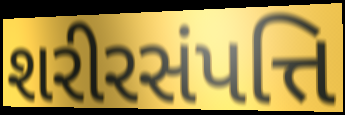
શરીરસંપત્તિ